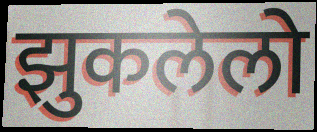
झुकलेलो